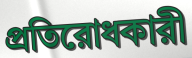
প্রতিরোধকারী